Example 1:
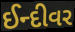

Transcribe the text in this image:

ઈન્દીવર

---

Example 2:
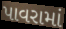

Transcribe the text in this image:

પાવરામાં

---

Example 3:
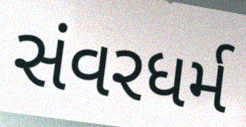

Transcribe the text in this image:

સંવરધર્મ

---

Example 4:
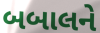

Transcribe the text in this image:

બબાલને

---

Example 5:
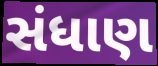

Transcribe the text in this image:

સંધાણ